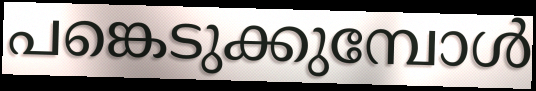
പങ്കെടുക്കുമ്പോൾ